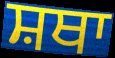
ਸ਼ਥਾ